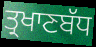
ਤ੍ਰਖਾਣਬੱਧ